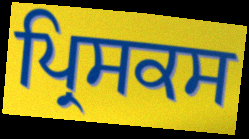
ਪ੍ਰਿਸਕਸ